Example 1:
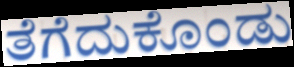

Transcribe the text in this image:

ತೆಗೆದುಕೊಂಡು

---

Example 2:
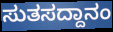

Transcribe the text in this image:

ಸುತಸದ್ದಾನಂ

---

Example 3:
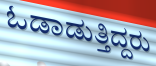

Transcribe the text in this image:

ಓಡಾಡುತ್ತಿದ್ದರು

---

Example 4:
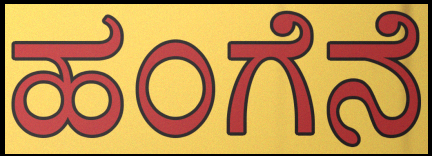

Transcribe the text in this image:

ಹಂಗೆನೆ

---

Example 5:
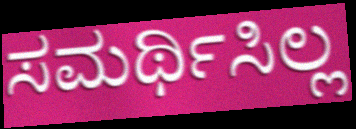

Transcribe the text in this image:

ಸಮರ್ಥಿಸಿಲ್ಲ